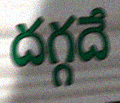
దగ్గదే